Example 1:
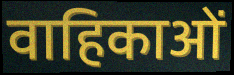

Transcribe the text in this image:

वाहिकाओं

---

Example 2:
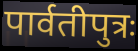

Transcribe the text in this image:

पार्वतीपुत्रः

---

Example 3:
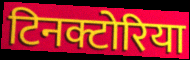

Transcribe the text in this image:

टिनक्टोरिया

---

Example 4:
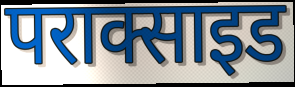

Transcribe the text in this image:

पराक्साइड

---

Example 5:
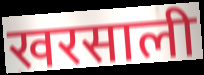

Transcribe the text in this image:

खरसाली